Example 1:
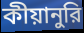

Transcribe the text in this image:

কীয়ানুরি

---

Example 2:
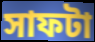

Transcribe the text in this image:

সাফটা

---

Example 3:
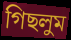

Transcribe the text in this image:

গিছলুম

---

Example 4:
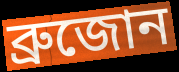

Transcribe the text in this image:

ব্রুজোন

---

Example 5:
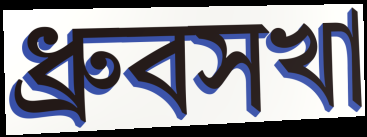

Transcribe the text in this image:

ধ্রুবসখা